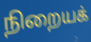
நிறையக்